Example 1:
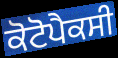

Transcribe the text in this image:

ਕੋਟੋਪੈਕਸੀ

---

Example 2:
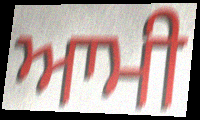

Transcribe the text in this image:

ਆਮੀ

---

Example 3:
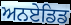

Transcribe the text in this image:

ਅਨਏਡਿਡ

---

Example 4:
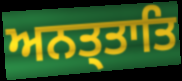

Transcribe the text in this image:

ਅਨਤ੍ਤਾਤਿ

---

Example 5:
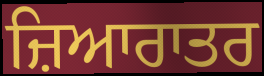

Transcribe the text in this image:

ਜ਼ਿਆਰਾਤਰ